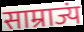
साम्राज्यं